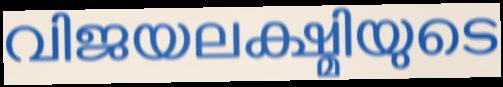
വിജയലക്ഷ്മിയുടെ